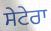
ਸੇਟੇਰਾ